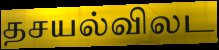
தசயல்விலட